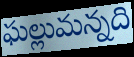
ఘల్లుమన్నది